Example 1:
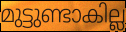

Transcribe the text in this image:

മുട്ടുണ്ടാകില്ല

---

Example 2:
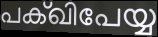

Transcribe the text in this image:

പക്ഖിപേയ്യ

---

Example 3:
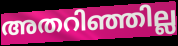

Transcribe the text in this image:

അതറിഞ്ഞില്ല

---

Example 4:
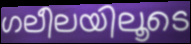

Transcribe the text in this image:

ഗലീലയിലൂടെ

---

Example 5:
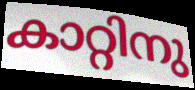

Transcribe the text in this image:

കാറ്റിനു